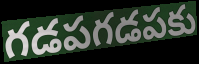
గడపగడపకు